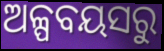
ଅଳ୍ପବୟସରୁ